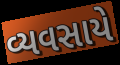
વ્યવસાયે